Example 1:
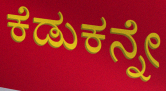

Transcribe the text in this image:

ಕೆಡುಕನ್ನೇ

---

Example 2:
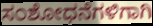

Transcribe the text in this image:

ಸಂಶೋಧನೆಗಳಿಗಾಗಿ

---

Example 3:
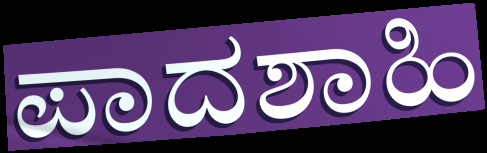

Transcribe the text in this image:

ಪಾದಶಾಹಿ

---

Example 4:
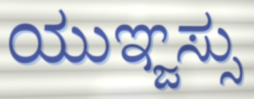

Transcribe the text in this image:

ಯುಞ್ಜಸ್ಸು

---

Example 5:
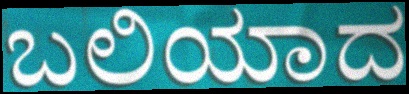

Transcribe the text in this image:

ಬಲಿಯಾದ